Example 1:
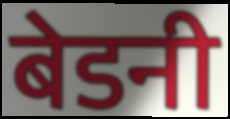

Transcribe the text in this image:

बेडनी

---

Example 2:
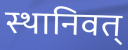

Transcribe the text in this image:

स्थानिवत्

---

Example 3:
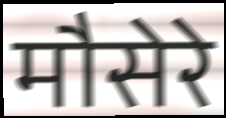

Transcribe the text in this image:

मौसेरे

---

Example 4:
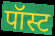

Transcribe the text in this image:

पॉस्ट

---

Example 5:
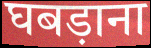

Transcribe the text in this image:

घबड़ाना